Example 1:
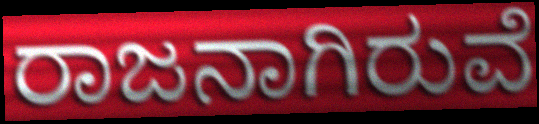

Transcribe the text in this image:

ರಾಜನಾಗಿರುವೆ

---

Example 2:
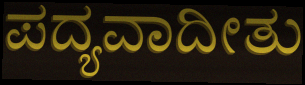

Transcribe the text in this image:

ಪದ್ಯವಾದೀತು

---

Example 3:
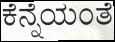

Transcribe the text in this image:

ಕೆನ್ನೆಯಂತೆ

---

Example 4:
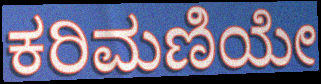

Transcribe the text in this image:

ಕರಿಮಣಿಯೇ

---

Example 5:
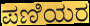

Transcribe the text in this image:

ಪಣಿಯರ